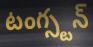
టంగ్స్టన్